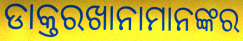
ଡାକ୍ତରଖାନାମାନଙ୍କର